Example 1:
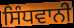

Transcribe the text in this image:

ਸਿੰਧਵਾਨੀ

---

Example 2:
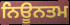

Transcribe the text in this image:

ਨਿਊਨਤਮ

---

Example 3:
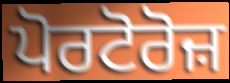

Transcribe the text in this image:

ਪੋਰਟੋਰੋਜ਼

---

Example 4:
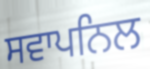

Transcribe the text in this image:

ਸਵਾਪਨਿਲ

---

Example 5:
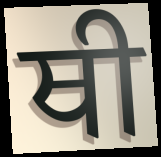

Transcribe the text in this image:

ਥੀ